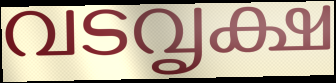
വടവൃക്ഷ